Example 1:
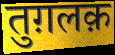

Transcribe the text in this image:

तुग़लक़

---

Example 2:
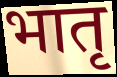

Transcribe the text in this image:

भातृ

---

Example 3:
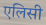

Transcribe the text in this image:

एलिसी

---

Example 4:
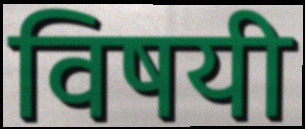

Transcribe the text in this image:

विषयी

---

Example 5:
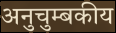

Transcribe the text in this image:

अनुचुम्बकीय